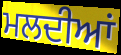
ਮਲਦੀਆਂ